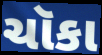
ચૉકા